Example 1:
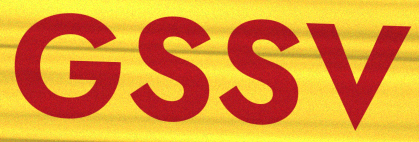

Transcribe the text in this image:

GSSV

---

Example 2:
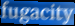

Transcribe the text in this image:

fugacity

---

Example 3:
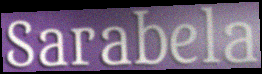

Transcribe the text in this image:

Sarabela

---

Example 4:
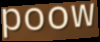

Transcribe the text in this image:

poow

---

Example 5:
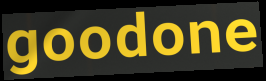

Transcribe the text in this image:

goodone